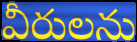
వీరులను